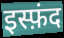
इस्फ़ंद